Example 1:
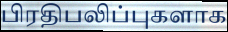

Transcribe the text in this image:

பிரதிபலிப்புகளாக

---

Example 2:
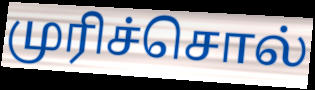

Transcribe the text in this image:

முரிச்சொல்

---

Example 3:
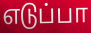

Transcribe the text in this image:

எடுப்பா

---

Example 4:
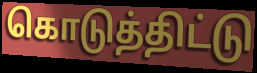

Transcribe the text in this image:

கொடுத்திட்டு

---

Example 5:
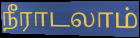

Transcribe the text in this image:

நீராடலாம்